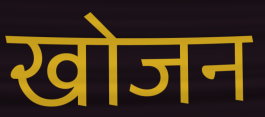
खोजन